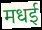
मधई